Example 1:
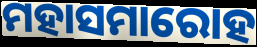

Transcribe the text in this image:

ମହାସମାରୋହ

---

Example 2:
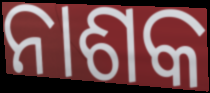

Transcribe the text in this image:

ନାଶକ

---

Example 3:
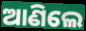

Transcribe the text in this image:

ଆଣିଲେ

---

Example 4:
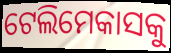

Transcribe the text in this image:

ଟେଲିମେକାସକୁ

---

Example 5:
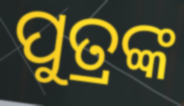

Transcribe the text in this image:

ପୁତ୍ରଙ୍କ